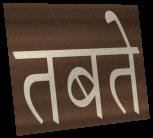
तबते